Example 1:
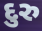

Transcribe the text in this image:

દુરુ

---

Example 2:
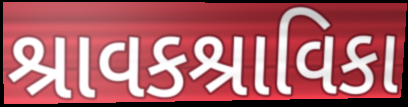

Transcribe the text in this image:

શ્રાવકશ્રાવિકા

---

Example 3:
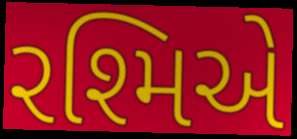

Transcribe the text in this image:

રશ્મિએ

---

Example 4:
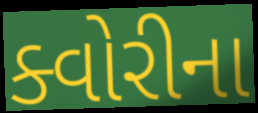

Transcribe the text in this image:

ક્વોરીના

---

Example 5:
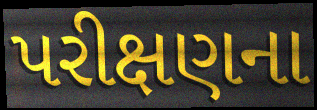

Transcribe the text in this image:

પરીક્ષણના